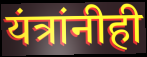
यंत्रांनीही